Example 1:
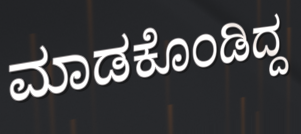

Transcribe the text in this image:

ಮಾಡಕೊಂಡಿದ್ದ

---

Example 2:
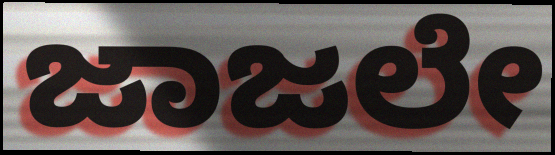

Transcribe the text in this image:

ಜಾಜಲೇ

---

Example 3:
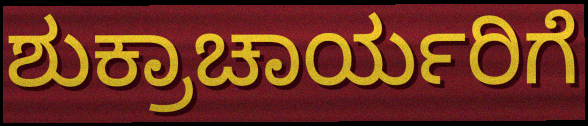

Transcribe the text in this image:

ಶುಕ್ರಾಚಾರ್ಯರಿಗೆ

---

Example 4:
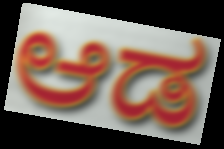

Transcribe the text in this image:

ಆಡ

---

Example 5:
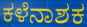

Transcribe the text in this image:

ಕಳೆನಾಶಕ